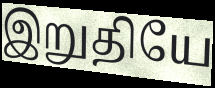
இறுதியே